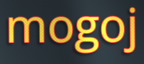
mogoj